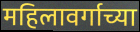
महिलावर्गाच्या